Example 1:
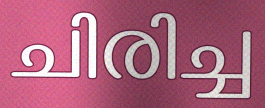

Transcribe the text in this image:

ചിരിച്ച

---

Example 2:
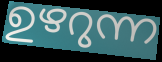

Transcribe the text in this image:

ഉഴറുന്ന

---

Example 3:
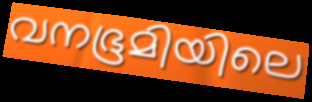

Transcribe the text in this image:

വനഭൂമിയിലെ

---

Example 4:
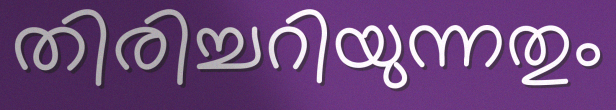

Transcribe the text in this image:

തിരിച്ചറിയുന്നതും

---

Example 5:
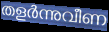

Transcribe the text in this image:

തളർന്നുവീണ